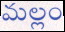
మల్లం